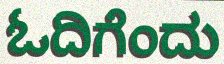
ಓದಿಗೆಂದು